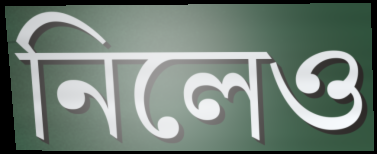
নিলেও